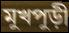
মুখপুড়ী